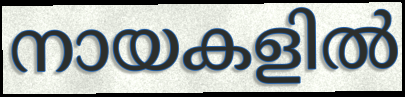
നായകളിൽ